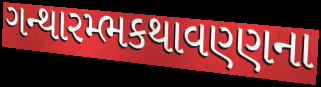
ગન્થારમ્ભકથાવણ્ણના